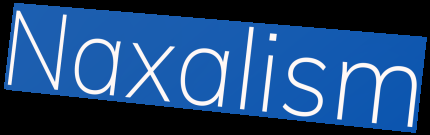
Naxalism